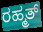
ರಹ್ಮತ್